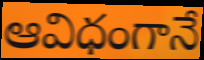
ఆవిధంగానే